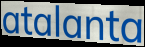
atalanta